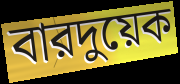
বারদুয়েক